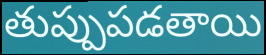
తుప్పుపడతాయి